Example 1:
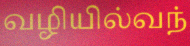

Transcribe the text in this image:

வழியில்வந்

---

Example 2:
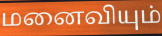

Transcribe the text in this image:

மனைவியும்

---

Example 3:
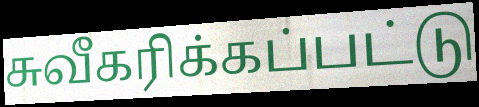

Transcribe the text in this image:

சுவீகரிக்கப்பட்டு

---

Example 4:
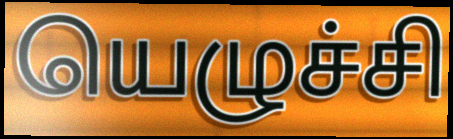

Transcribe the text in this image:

யெழுச்சி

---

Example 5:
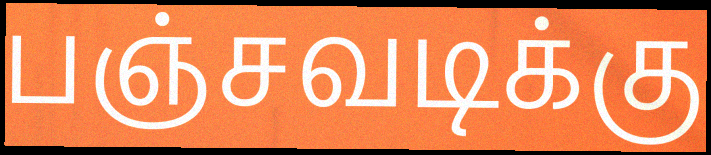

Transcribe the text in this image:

பஞ்சவடிக்கு